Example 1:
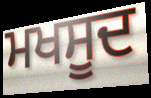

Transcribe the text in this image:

ਮਖਸੂਦ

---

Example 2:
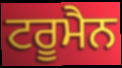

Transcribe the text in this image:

ਟਰੂਮੈਨ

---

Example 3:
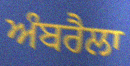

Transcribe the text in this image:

ਅੰਬਰੈਲਾ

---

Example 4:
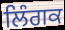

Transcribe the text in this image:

ਲਿੰਗਕ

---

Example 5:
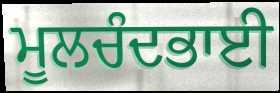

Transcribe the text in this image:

ਮੂਲਚੰਦਭਾਈ